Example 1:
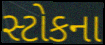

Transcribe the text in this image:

સ્ટોકના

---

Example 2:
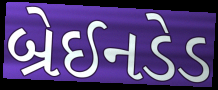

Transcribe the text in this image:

બ્રેઈનડેડ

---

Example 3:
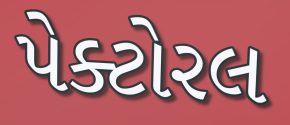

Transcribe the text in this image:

પેક્ટોરલ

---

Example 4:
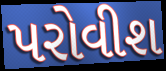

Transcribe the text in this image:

પરોવીશ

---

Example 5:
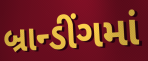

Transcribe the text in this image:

બ્રાન્ડીંગમાં